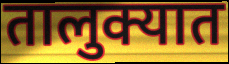
तालुक्यात